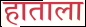
हाताला